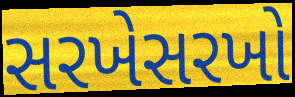
સરખેસરખો